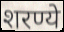
शरण्ये